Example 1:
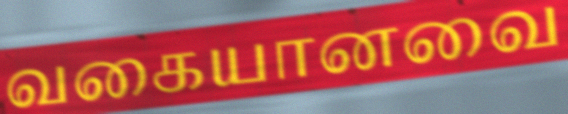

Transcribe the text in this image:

வகையானவை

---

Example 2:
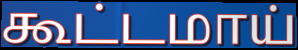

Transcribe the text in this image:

கூட்டமாய்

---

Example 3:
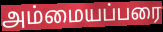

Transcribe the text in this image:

அம்மையப்பரை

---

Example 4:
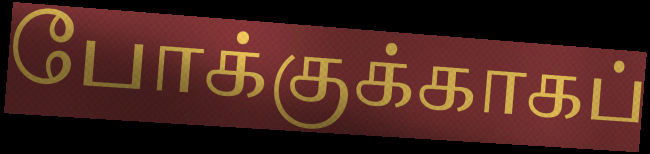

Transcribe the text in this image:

போக்குக்காகப்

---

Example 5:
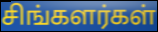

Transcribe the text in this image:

சிங்களர்கள்